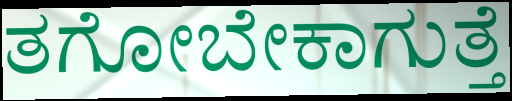
ತಗೋಬೇಕಾಗುತ್ತೆ